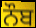
ਨੌਬ